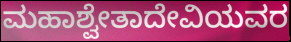
ಮಹಾಶ್ವೇತಾದೇವಿಯವರ